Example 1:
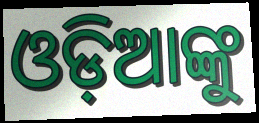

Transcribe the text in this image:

ଓଡ଼ିଆଙ୍କୁ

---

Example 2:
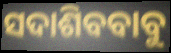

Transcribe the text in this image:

ସଦାଶିବବାବୁ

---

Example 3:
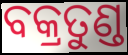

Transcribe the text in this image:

ବକ୍ରତୁଣ୍ଡ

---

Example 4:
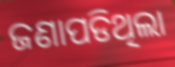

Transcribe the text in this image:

ଜଣାପଡିଥିଲା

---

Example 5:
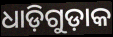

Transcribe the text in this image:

ଧାଡ଼ିଗୁଡ଼ାକ